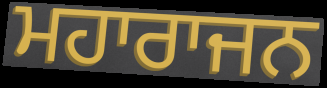
ਮਹਾਰਾਜਨ